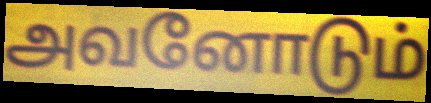
அவனோடும்